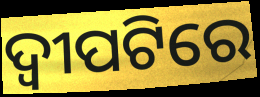
ଦ୍ୱୀପଟିରେ